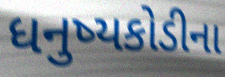
ધનુષ્યકોડીના